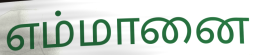
எம்மானை